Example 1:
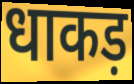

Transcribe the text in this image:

धाकड़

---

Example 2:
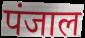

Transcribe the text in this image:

पंजाल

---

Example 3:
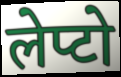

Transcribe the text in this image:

लेप्टो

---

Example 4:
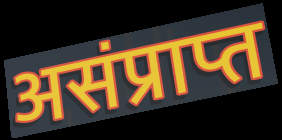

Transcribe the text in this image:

असंप्राप्त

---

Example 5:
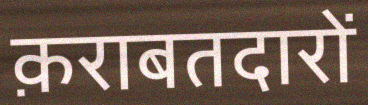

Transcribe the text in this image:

क़राबतदारों